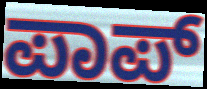
ಪಾಪ್